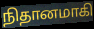
நிதானமாகி